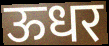
ऊधर